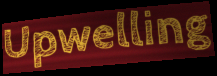
Upwelling